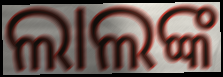
ଲାଲଙ୍କ